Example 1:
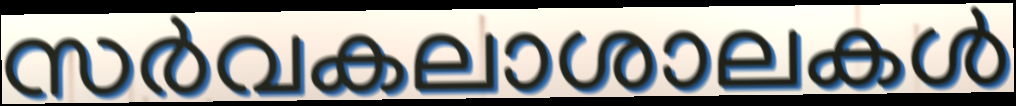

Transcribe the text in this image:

സർവകലാശാലകൾ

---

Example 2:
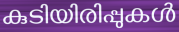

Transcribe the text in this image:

കുടിയിരിപ്പുകൾ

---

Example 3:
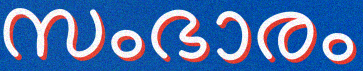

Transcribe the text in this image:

സംഭാരം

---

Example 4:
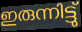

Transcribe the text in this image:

ഇരുന്നിട്ടു്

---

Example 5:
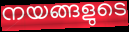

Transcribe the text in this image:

നയങ്ങളുടെ